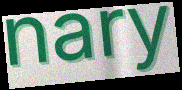
nary